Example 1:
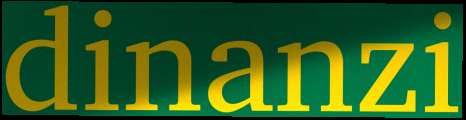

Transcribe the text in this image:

dinanzi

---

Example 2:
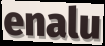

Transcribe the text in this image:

enalu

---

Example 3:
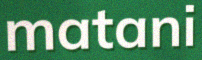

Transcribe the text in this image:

matani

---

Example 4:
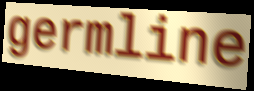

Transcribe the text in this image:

germline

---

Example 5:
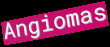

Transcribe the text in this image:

Angiomas